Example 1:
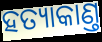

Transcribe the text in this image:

ହତ୍ୟାକାଣ୍ତ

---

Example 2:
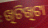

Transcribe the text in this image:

ଖିଟିଖିଟା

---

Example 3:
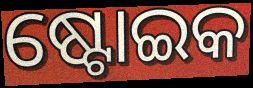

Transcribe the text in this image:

ଷ୍ଟୋଇକ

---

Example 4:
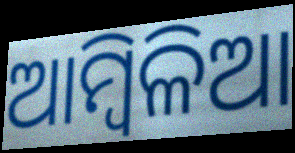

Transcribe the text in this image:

ଆମ୍ୱିଳିଆ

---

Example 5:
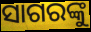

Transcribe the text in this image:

ସାଗରଙ୍କୁ